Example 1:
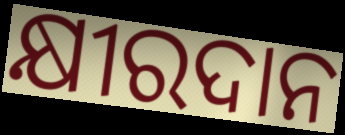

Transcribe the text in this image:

କ୍ଷୀରଦାନ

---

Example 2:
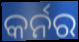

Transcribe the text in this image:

କର୍ନର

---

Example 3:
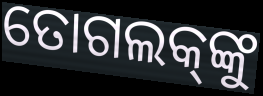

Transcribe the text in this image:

ତୋଗଲକ୍‌ଙ୍କୁ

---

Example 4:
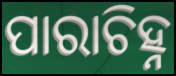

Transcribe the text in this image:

ପାରାଚିହ୍ନ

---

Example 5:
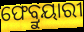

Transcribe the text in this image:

ଫେବ୍ରୁୟାରୀ